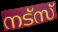
നട്സ്